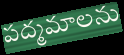
పద్మమాలను